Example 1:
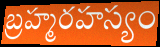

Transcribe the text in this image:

బ్రహ్మరహస్యం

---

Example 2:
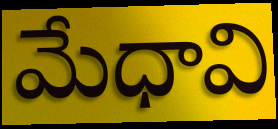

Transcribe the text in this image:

మేధావి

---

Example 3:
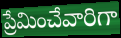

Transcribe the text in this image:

ప్రేమించేవారిగా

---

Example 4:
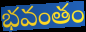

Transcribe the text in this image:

భవంతం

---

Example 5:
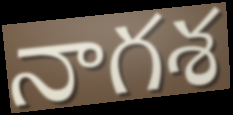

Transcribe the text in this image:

నాగశ